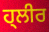
ਹ੍ਲੀਰ